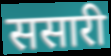
ससारी